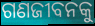
ଗଣଜୀବନକୁ